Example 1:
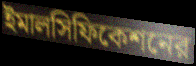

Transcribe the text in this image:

ইমালসিফিকেশনের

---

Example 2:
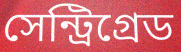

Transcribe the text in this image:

সেন্ট্রিগ্রেড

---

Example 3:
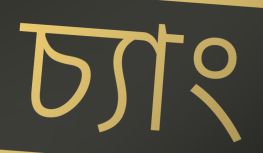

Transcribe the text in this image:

চ্যাং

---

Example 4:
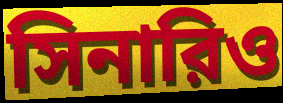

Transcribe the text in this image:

সিনারিও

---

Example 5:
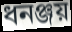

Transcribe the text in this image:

ধনঞ্জয়